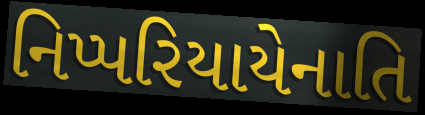
નિપ્પરિયાયેનાતિ